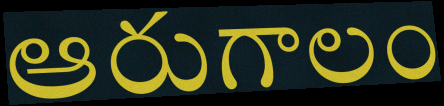
ఆరుగాలం